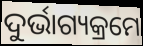
ଦୁର୍ଭାଗ୍ୟକ୍ରମେ